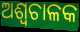
ଅଶ୍ୱଚାଳକ